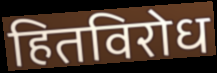
हितविरोध